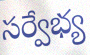
సర్వేభ్య